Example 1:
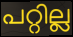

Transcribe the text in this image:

പറ്റില്ല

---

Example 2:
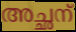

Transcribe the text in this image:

അച്ഛന്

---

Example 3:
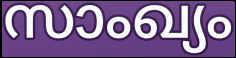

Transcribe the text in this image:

സാംഖ്യം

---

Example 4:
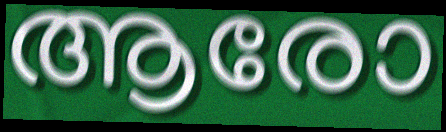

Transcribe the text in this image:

ആരോ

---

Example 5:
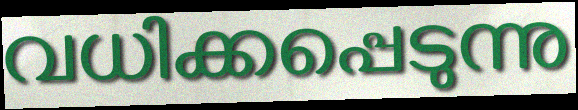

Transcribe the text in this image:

വധിക്കപ്പെടുന്നു